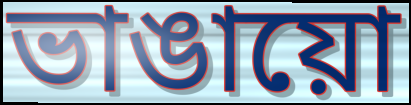
ভাঙায়ো